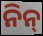
ନିନ୍